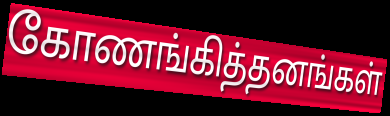
கோணங்கித்தனங்கள்